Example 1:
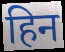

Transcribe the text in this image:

हिन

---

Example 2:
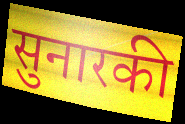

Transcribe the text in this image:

सुनारकी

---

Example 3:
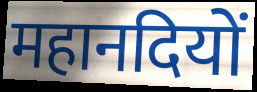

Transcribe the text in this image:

महानदियों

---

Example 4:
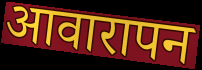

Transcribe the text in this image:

आवारापन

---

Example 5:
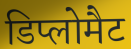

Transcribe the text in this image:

डिप्लोमैट